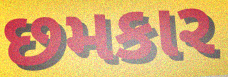
છમકાર